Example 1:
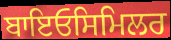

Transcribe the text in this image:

ਬਾਇਓਸਿਮਿਲਰ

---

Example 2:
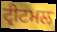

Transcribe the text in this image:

ਟ੍ਰੀਟਮਲ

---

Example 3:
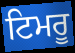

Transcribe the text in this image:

ਟਿਮਰੂ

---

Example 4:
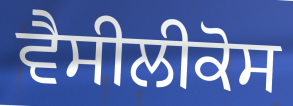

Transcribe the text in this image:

ਵੈਸੀਲੀਕੋਸ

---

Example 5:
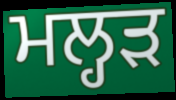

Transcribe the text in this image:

ਮਲ੍ਹੜ